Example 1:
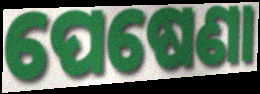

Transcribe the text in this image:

ପେଷେଣା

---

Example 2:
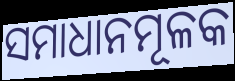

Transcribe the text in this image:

ସମାଧାନମୂଳକ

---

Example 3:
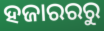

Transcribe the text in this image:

ହଜାରରରୁ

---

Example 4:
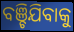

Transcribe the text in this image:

ବଞ୍ଚିଯିବାକୁ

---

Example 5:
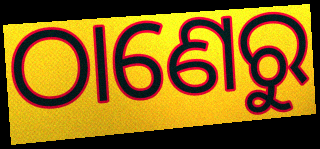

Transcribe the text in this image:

ଠାଣେରୁ